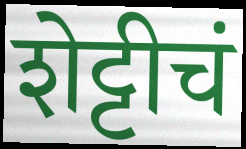
शेट्टीचं